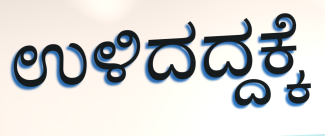
ಉಳಿದದ್ದಕ್ಕೆ